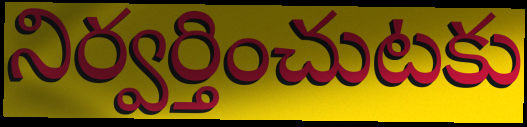
నిర్వర్తించుటకు